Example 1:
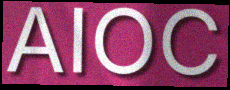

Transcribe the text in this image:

AIOC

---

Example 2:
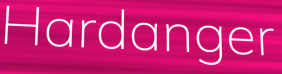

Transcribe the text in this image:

Hardanger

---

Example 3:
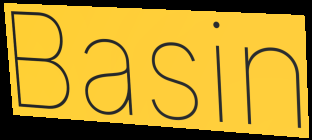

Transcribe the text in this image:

Basin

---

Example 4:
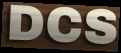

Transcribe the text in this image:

DCS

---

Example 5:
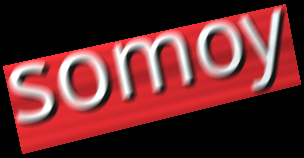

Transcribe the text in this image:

somoy